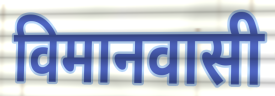
विमानवासी